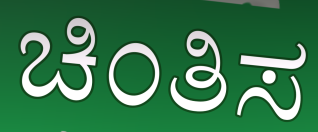
ಚಿಂತಿಸ